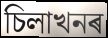
চিলাখনৰ